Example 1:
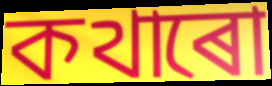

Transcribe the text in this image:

কথাৰো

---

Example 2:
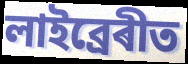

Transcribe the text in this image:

লাইব্ৰেৰীত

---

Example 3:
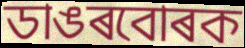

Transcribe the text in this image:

ডাঙৰবোৰক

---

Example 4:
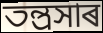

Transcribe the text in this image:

তন্ত্ৰসাৰ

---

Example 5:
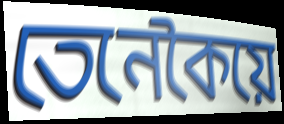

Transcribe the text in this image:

তেনেকৈয়ে